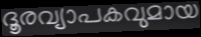
ദൂരവ്യാപകവുമായ